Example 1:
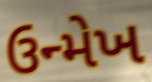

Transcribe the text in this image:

ઉન્મેખ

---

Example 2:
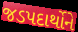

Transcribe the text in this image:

જડપદાર્થોને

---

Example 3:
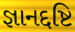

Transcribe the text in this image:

જ્ઞાનદ્દષ્ટિ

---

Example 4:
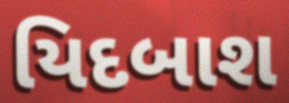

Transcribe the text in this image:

યિદબાશ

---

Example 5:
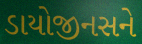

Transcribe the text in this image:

ડાયોજીનસને